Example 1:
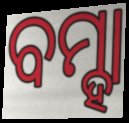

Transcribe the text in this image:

ବମ୍ହା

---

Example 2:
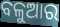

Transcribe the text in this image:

ବଳୁଆର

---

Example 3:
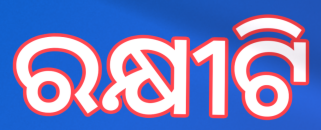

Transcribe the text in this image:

ରକ୍ଷୀଟି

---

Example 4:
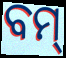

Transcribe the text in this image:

ବମ୍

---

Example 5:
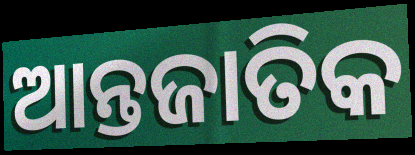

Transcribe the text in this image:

ଆନ୍ତଜାତିକ